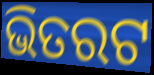
ଭିତରଟ